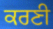
ਕਰਣੀ